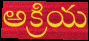
అక్రియ